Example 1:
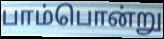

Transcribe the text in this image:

பாம்பொன்று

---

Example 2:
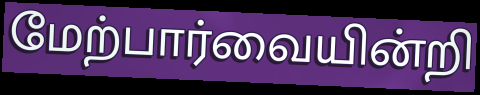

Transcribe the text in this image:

மேற்பார்வையின்றி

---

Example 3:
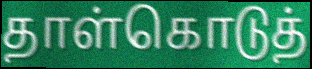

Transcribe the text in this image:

தாள்கொடுத்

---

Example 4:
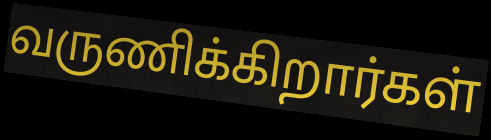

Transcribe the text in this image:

வருணிக்கிறார்கள்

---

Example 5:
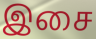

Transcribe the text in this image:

இசை